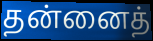
தன்னைத்